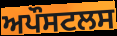
ਅਪੌਸਟਲਸ